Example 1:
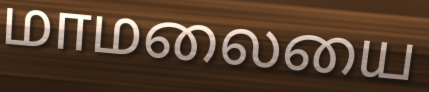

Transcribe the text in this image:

மாமலையை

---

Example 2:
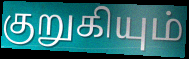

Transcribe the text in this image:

குறுகியும்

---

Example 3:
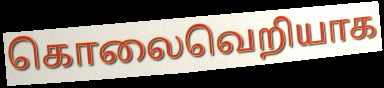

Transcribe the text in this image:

கொலைவெறியாக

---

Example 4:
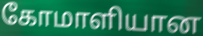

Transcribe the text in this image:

கோமாளியான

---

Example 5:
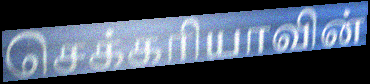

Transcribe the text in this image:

செக்கரியாவின்